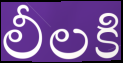
లీలకి